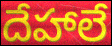
దేహాలే